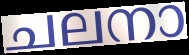
ചലനാ